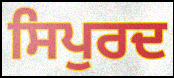
ਸਿਪੁਰਦ